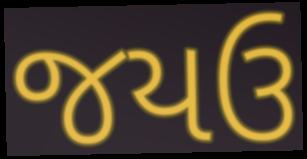
જયઉ